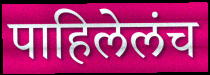
पाहिलेलंच